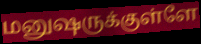
மனுஷருக்குள்ளே